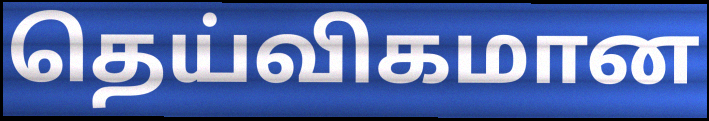
தெய்விகமான